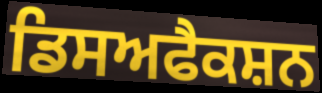
ਡਿਸਅਫੈਕਸ਼ਨ